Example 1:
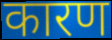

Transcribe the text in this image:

कारण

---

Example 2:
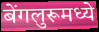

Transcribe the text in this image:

बेंगलुरूमध्ये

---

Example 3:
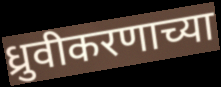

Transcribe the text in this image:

ध्रुवीकरणाच्या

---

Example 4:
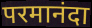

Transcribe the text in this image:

परमानंदा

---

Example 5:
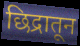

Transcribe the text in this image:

छिद्रातून